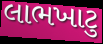
લાભખાટુ